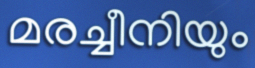
മരച്ചീനിയും